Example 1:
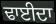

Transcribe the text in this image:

ਢਾਈਦਾ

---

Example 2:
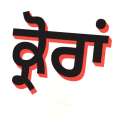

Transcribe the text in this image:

ਕ੍ਰੋਰਾਂ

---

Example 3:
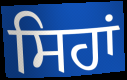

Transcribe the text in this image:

ਸਿਹਾਂ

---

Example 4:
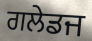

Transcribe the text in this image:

ਗਲੇਡਜ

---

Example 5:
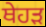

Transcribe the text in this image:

ਥੇਹੜ